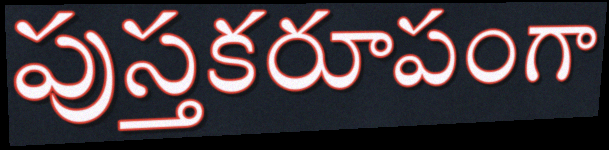
పుస్తకరూపంగా